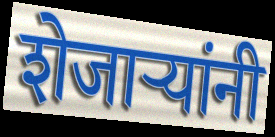
शेजाऱ्यांनी